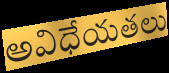
అవిధేయతలు